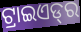
ଟ୍ରାଇଏଡ୍‌ର